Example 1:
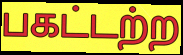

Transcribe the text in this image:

பகட்டற்ற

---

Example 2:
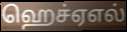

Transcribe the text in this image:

ஹெச்ஏஎல்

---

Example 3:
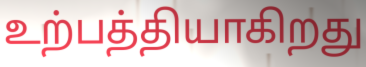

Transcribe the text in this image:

உற்பத்தியாகிறது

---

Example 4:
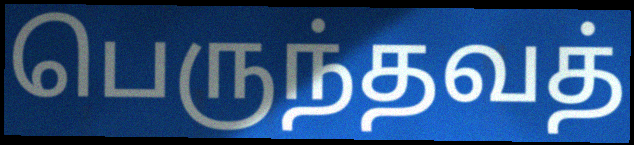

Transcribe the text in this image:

பெருந்தவத்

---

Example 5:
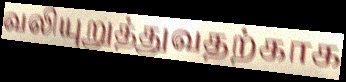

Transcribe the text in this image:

வலியுறுத்துவதற்காக